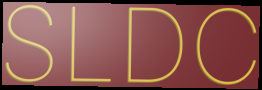
SLDC